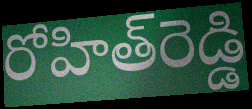
రోహిత్‌రెడ్డి